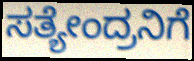
ಸತ್ಯೇಂದ್ರನಿಗೆ